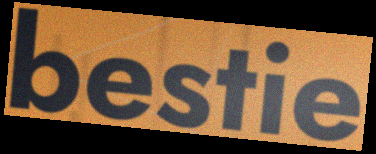
bestie